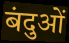
बंदुओं